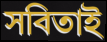
সবিতাই